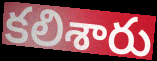
కలిశారు